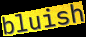
bluish